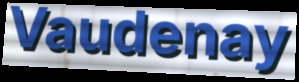
Vaudenay